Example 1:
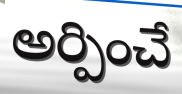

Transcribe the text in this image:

అర్పించే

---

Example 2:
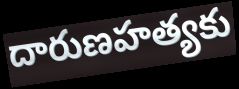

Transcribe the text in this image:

దారుణహత్యకు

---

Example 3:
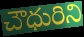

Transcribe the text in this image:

చౌధురిని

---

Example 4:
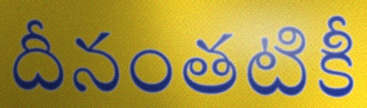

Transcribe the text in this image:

దీనంతటికీ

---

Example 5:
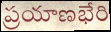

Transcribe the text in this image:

ప్రయాణభేరి